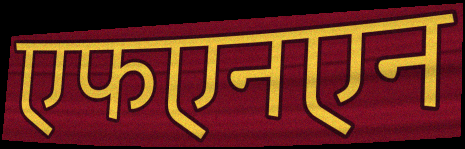
एफएनएन